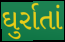
ઘુર્રાતાં